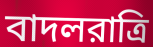
বাদলরাত্রি